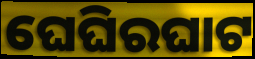
ଘେଘିରଘାଟ